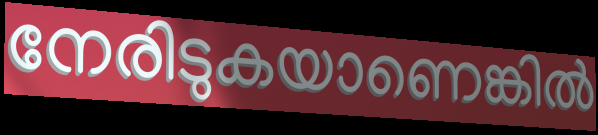
നേരിടുകയാണെങ്കിൽ